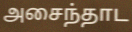
அசைந்தாட